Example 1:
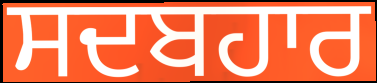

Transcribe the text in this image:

ਸਦਬਹਾਰ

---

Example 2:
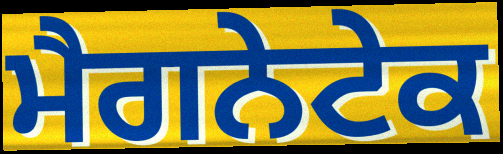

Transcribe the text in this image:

ਮੈਗਨੇਟੇਕ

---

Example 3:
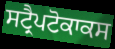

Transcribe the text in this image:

ਸਟ੍ਰੈਪਟੋਕਾਕਸ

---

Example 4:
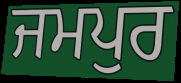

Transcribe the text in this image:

ਜਮਪੁਰ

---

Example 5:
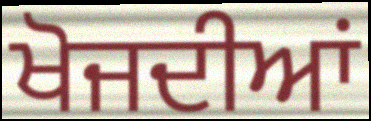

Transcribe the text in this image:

ਖੋਜਦੀਆਂ